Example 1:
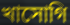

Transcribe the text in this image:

খাসোগি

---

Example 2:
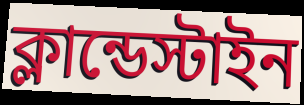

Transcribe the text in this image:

ক্লান্ডেস্টাইন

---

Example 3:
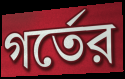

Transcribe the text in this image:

গর্তের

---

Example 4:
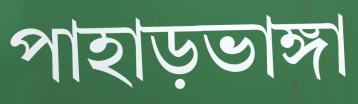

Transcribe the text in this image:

পাহাড়ভাঙ্গা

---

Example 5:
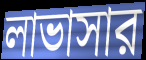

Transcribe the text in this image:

লাভাসার